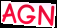
AGN